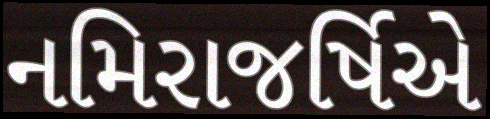
નમિરાજર્ષિએ